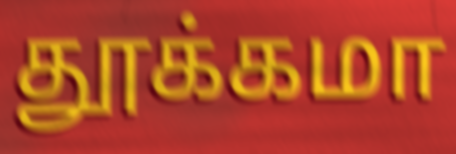
தூக்கமா